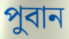
পুবান